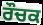
ਰੌਚਕ